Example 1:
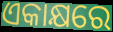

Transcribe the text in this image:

ଏକାକ୍ଷରେ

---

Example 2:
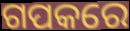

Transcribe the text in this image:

ଗପକରେ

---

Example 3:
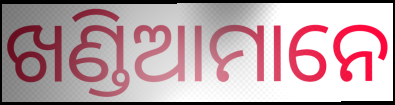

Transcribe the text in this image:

ଖଣ୍ଡିଆମାନେ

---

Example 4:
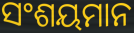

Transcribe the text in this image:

ସଂଶୟମାନ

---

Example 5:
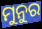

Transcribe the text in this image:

ମୁନୁର